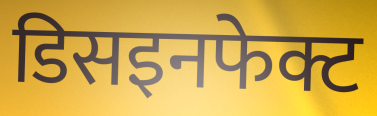
डिसइनफेक्ट